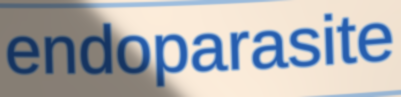
endoparasite